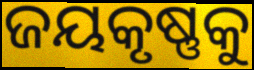
ଜୟକୃଷ୍ଣକୁ